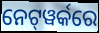
ନେଟ୍‍ୱର୍କରେ